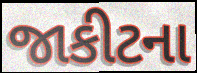
જાકીટના